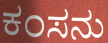
ಕಂಸನು